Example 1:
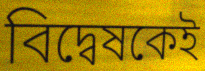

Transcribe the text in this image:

বিদ্বেষকেই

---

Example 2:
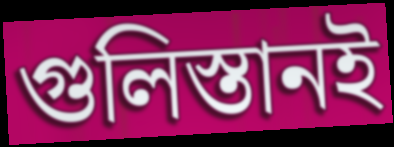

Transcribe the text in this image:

গুলিস্তানই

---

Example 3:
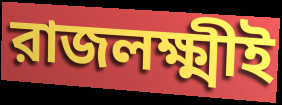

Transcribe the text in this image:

রাজলক্ষ্মীই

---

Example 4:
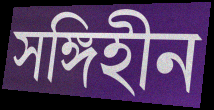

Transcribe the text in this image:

সঙ্গিহীন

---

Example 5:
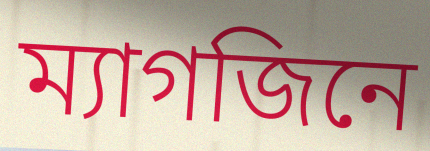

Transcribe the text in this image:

ম্যাগজিনে